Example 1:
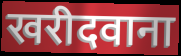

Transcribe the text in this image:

खरीदवाना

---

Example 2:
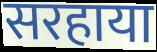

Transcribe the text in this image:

सरहाया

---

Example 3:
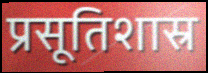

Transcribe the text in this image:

प्रसूतिशास्र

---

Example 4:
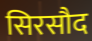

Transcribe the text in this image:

सिरसौद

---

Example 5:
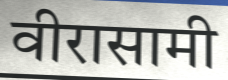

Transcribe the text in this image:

वीरासामी